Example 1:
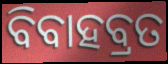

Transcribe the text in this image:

ବିବାହବ୍ରତ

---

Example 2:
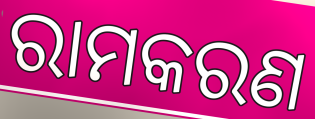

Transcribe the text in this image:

ରାମକରଣ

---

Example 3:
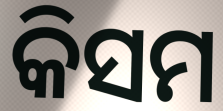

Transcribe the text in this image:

କିସମ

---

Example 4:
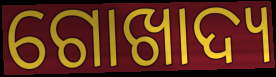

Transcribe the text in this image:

ଗୋଖାଦ୍ୟ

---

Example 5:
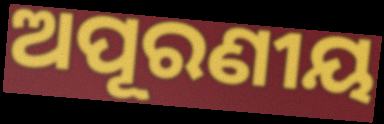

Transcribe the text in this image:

ଅପୂରଣୀୟ